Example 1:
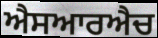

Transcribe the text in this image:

ਐਸਆਰਐਚ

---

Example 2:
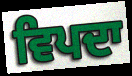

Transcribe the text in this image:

ਵਿਪਦਾ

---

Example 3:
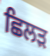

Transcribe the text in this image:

ਛਿਲੜ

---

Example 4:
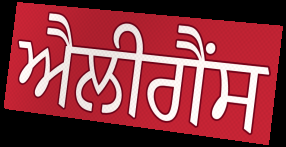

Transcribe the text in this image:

ਐਲੀਗੈਂਸ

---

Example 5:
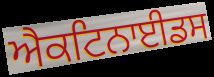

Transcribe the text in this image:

ਐਕਟਿਨਾਈਡਸ